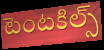
టెంటకిల్స్